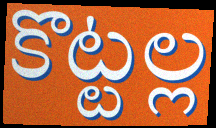
కొట్టల్ల